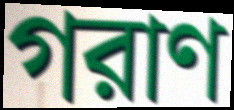
গরাণ